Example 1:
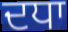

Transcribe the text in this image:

ਦਧਾ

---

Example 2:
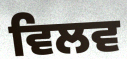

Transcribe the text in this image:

ਵਿਲਵ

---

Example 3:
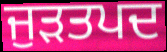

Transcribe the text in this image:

ਜੁੜਤਪਦ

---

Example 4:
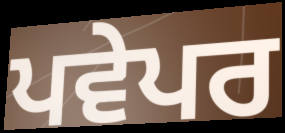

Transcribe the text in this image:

ਪਵੇਪਰ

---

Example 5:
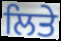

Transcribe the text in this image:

ਲਿਤੇ